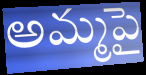
అమ్మపై